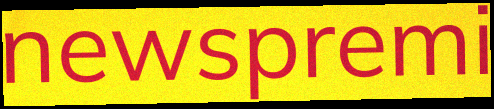
newspremi